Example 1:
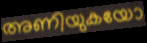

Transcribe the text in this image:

അണിയുകയോ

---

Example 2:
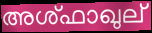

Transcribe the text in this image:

അശ്ഫാഖുല്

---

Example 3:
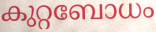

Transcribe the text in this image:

കുറ്റബോധം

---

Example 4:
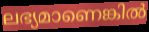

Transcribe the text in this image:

ലഭ്യമാണെങ്കിൽ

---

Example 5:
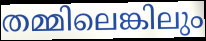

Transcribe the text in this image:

തമ്മിലെങ്കിലും